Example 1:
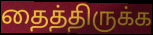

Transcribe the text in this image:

தைத்திருக்க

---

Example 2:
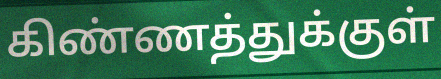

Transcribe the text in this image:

கிண்ணத்துக்குள்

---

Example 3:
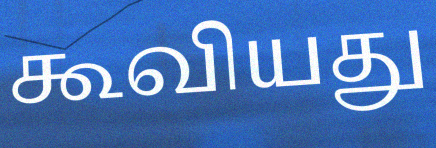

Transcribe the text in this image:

கூவியது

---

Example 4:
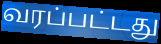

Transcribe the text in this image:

வரப்பட்டது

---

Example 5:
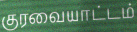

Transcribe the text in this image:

குரவையாட்டம்